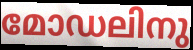
മോഡലിനു